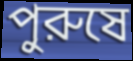
পুরুষে